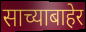
साच्याबाहेर